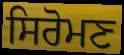
ਸਿਰੋਮਣ